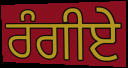
ਰੰਗੀਏ